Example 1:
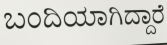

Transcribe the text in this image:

ಬಂದಿಯಾಗಿದ್ದಾರೆ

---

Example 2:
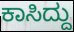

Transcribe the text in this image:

ಕಾಸಿದ್ದು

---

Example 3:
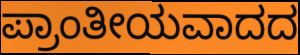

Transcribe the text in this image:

ಪ್ರಾಂತೀಯವಾದದ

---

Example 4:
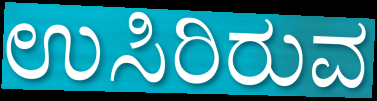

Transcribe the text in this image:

ಉಸಿರಿರುವ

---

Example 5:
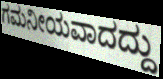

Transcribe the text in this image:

ಗಮನೀಯವಾದದ್ದು